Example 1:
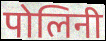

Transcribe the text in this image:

पोलिनी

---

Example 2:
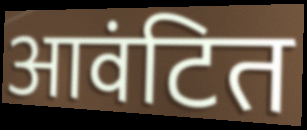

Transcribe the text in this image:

आवंटित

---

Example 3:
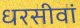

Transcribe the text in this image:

धरसीवां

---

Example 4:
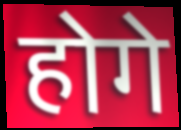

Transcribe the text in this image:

होगे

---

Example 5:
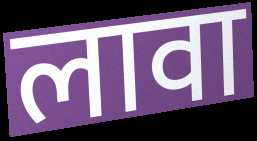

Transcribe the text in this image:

लावा